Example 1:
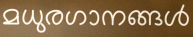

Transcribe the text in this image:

മധുരഗാനങ്ങൾ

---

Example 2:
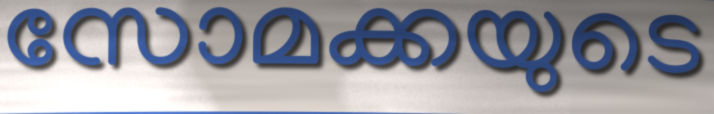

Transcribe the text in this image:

സോമക്കയുടെ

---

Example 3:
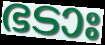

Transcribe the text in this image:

ഭടാഃ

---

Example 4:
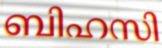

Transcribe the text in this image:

ബിഹസി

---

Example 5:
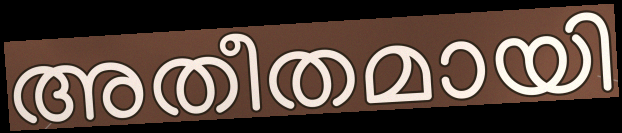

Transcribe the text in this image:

അതീതമായി